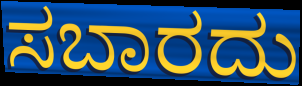
ಸಬಾರದು